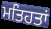
ਮਤਿਹਤਾਂ